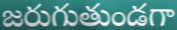
జరుగుతుండగా